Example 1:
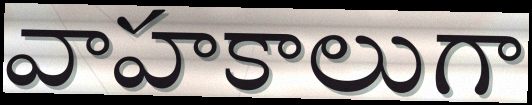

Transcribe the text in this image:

వాహకాలుగా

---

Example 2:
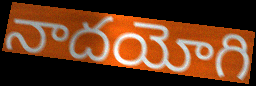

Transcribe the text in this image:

నాదయోగి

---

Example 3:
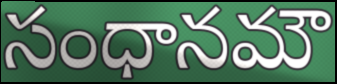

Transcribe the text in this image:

సంధానమౌ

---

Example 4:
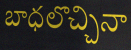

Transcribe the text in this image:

బాధలొచ్చినా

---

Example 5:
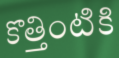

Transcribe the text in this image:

కొత్తింటికి